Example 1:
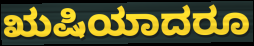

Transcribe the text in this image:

ಋಷಿಯಾದರೂ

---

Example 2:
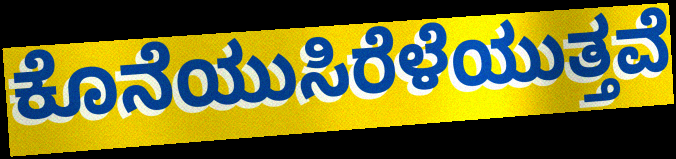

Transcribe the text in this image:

ಕೊನೆಯುಸಿರೆಳೆಯುತ್ತವೆ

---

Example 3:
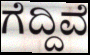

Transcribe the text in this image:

ಗೆದ್ದಿವೆ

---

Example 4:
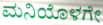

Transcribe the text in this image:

ಮನಿಯೊಳಗೇ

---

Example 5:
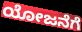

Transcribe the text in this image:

ಯೋಜನೆಗೆ